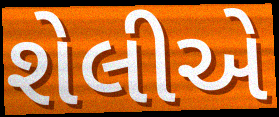
શેલીએ